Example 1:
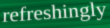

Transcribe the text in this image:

refreshingly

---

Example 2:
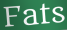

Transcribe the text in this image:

Fats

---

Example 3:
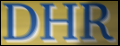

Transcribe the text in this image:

DHR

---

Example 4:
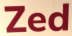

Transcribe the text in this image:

Zed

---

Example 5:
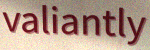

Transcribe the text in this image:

valiantly